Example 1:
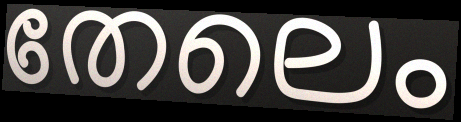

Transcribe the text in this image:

തേലെം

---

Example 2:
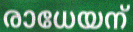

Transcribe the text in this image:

രാധേയന്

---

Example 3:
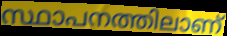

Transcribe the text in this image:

സ്ഥാപനത്തിലാണ്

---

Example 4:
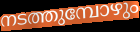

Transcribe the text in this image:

നടത്തുമ്പോഴും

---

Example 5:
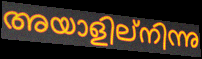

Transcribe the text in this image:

അയാളില്നിന്നു